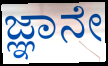
ಜ್ಞಾನೇ